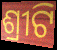
ଶ୍ରୀଟି